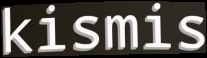
kismis